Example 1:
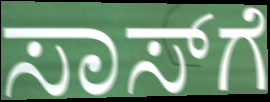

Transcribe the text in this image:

ಸಾಸ್‌ಗೆ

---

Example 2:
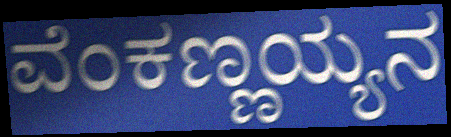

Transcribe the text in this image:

ವೆಂಕಣ್ಣಯ್ಯನ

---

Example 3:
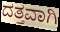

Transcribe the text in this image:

ದತ್ತವಾಗಿ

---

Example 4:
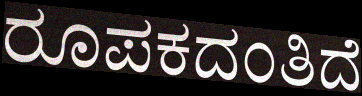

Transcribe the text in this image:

ರೂಪಕದಂತಿದೆ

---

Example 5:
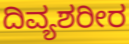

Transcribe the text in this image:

ದಿವ್ಯಶರೀರ